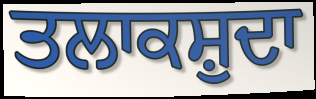
ਤਲਾਕਸ਼ੁਦਾ